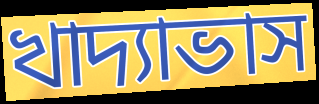
খাদ্যাভাস